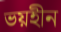
ভয়হীন